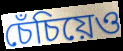
চেঁচিয়েও